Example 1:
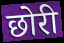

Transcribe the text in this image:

छोरी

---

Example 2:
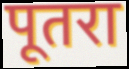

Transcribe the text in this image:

पूतरा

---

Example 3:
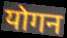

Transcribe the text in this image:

योगन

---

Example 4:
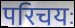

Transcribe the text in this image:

परिचयः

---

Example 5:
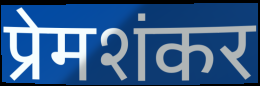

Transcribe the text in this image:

प्रेमशंकर